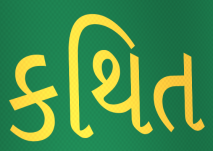
કથિત